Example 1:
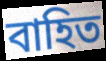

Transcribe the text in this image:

বাহিত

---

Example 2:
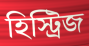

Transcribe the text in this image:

হিস্ট্রিজ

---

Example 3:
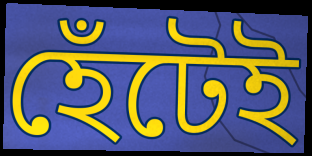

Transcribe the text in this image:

হেঁটেই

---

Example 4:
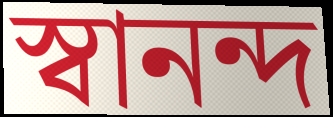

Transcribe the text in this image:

স্বানন্দ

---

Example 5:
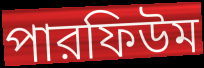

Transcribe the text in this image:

পারফিউম